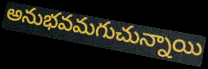
అనుభవమగుచున్నాయి